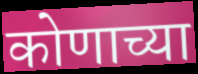
कोणाच्या